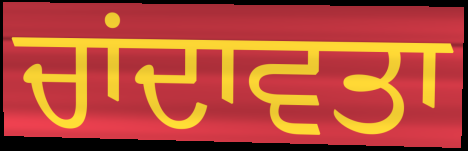
ਚਾਂਦਾਵਤਾ